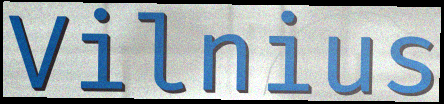
Vilnius